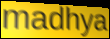
madhya